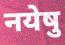
नयेषु